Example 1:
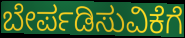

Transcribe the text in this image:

ಬೇರ್ಪಡಿಸುವಿಕೆಗೆ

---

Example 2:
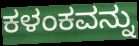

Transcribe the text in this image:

ಕಳಂಕವನ್ನು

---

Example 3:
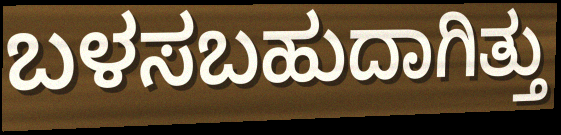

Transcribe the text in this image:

ಬಳಸಬಹುದಾಗಿತ್ತು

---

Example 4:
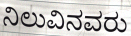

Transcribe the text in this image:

ನಿಲುವಿನವರು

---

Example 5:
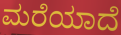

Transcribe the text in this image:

ಮರೆಯಾದೆ